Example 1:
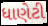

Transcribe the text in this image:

ધાણેટી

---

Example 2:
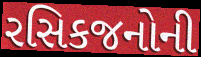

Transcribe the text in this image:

રસિકજનોની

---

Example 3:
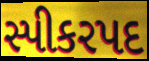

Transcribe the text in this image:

સ્પીકરપદ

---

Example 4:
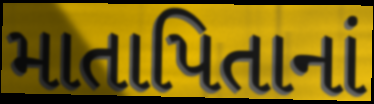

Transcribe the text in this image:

માતાપિતાનાં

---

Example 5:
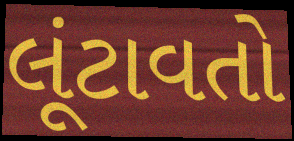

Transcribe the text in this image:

લૂંટાવતો